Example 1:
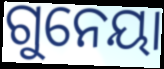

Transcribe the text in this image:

ଗୁନେୟା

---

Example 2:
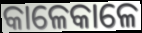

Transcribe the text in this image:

କାଳେକାଳେ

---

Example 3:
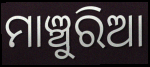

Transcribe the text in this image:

ମାଞ୍ଚୁରିଆ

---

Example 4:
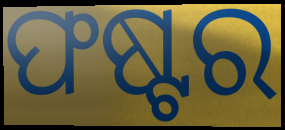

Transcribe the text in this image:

ଫଷ୍ଟର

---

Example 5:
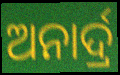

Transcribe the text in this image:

ଅନାର୍ଦ୍ର